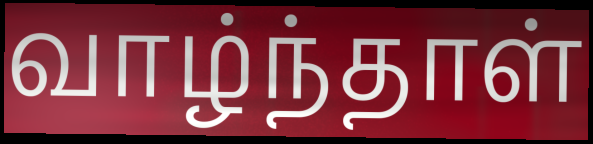
வாழ்ந்தாள்